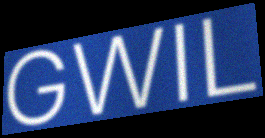
GWIL